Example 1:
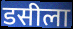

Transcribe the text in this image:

डसीला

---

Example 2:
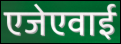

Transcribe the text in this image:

एजेएवाई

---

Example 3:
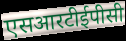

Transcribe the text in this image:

एसआरटीईपीसी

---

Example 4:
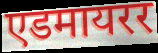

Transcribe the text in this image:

एडमायरर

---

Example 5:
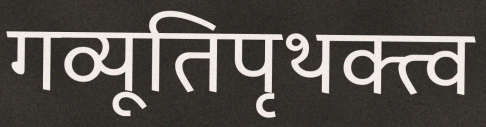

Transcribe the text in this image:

गव्यूतिपृथक्त्व